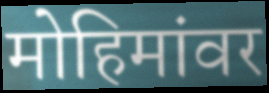
मोहिमांवर